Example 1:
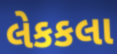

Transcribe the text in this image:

લેકકલા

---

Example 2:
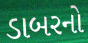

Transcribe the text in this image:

ડાબરનો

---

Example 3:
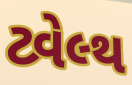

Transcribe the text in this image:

ટ્વેલ્થ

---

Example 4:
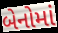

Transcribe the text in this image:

બેનોમાં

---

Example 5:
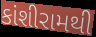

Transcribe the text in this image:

કાંશીરામથી